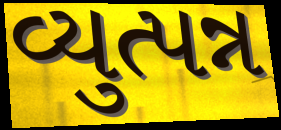
વ્યુત્પન્ન